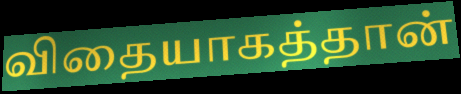
விதையாகத்தான்